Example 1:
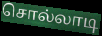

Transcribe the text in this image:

சொல்லாடி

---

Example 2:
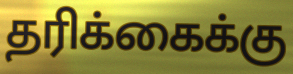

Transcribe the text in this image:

தரிக்கைக்கு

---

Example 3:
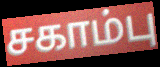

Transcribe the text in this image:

சகாம்பு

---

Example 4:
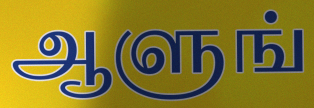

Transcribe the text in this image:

ஆளுங்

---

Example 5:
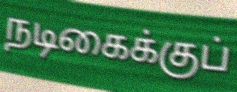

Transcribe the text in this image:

நடிகைக்குப்